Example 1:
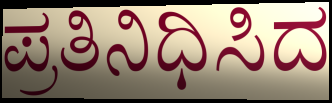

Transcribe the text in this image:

ಪ್ರತಿನಿಧಿಸಿದ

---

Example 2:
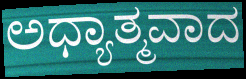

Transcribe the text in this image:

ಅಧ್ಯಾತ್ಮವಾದ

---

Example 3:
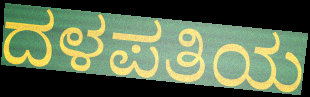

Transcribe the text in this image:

ದಳಪತಿಯ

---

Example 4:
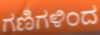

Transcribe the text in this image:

ಗಣಿಗಳಿಂದ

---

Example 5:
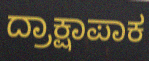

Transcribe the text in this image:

ದ್ರಾಕ್ಷಾಪಾಕ